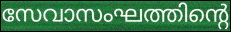
സേവാസംഘത്തിന്റെ